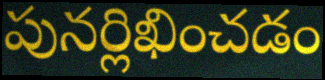
పునర్లిఖించడం